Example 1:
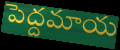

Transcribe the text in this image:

పెద్దమాయ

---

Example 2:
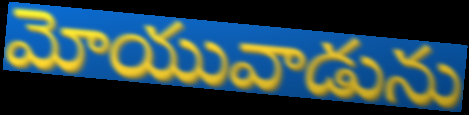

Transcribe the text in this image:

మోయువాడును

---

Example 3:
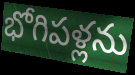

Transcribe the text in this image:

భోగిపళ్లను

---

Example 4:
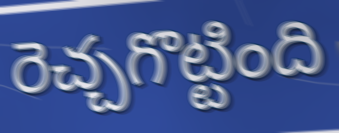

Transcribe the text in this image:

రెచ్చగొట్టింది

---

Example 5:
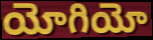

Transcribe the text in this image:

యోగియో